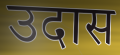
उदास